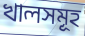
খালসমূহ